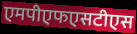
एमपीएफएसटीएस